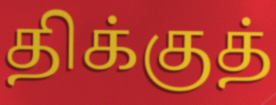
திக்குத்